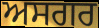
ਅਸਗਰ